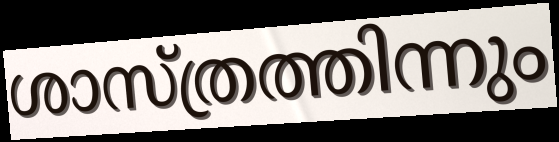
ശാസ്ത്രത്തിന്നും